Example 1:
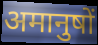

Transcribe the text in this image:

अमानुषों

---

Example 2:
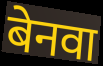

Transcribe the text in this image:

बेनवा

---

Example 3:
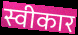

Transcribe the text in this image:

स्‍वीकार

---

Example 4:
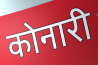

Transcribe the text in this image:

कोनारी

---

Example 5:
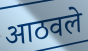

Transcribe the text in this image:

आठवले